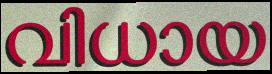
വിധായ